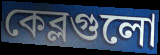
কেব্লগুলো